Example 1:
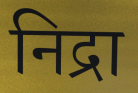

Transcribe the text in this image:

निद्रा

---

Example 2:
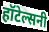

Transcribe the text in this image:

हॉटेल्सनी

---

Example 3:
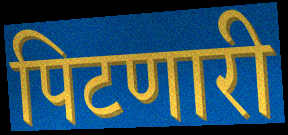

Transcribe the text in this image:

पिटणारी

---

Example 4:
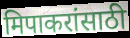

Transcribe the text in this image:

मिपाकरांसाठी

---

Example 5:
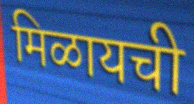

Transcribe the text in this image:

मिळायची